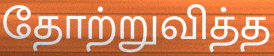
தோற்றுவித்த